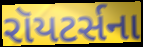
રૉયટર્સના